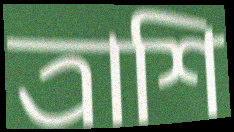
ত্রাশি